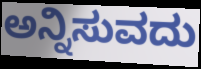
ಅನ್ನಿಸುವದು